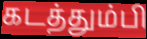
கடத்தும்பி